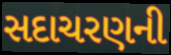
સદાચરણની